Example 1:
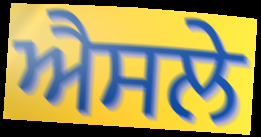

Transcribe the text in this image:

ਐਸਲੇ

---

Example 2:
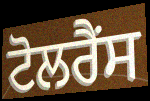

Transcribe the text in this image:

ਟੋਲਰੈਂਸ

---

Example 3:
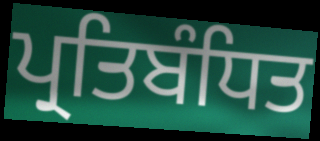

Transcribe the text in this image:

ਪ੍ਰਤਿਬੰਧਿਤ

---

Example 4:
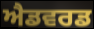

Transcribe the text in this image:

ਐਡਵਰਡ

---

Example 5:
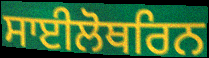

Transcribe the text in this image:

ਸਾਈਲੋਥਰਿਨ